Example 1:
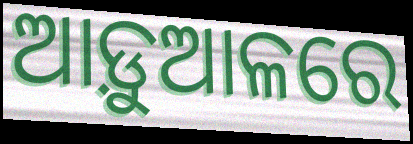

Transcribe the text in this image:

ଆଡ଼ୁଆଳରେ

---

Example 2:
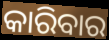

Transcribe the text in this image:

କାରିବାର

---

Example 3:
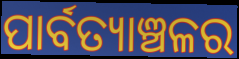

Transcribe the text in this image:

ପାର୍ବତ୍ୟାଞ୍ଚଳର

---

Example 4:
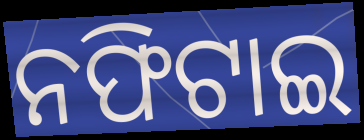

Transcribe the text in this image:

ନଫିଟାଇ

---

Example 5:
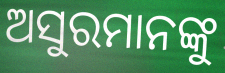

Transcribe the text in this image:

ଅସୁରମାନଙ୍କୁ